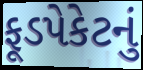
ફૂડપેકેટનું